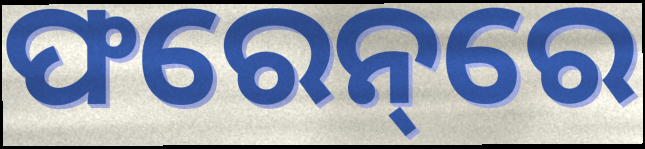
ଫରେନ୍‌ରେ